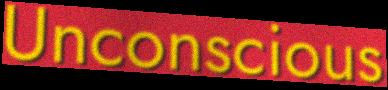
Unconscious